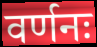
वर्णनः